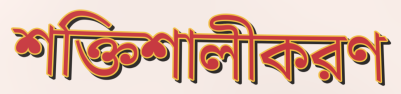
শক্তিশালীকরণ